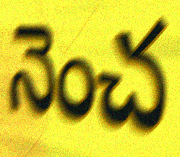
నెంచ